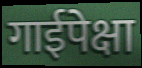
गाईपेक्षा